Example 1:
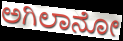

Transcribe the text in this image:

ಅಗಿಲಾನೋ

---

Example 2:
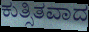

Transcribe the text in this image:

ಕುತ್ಸಿತವಾದ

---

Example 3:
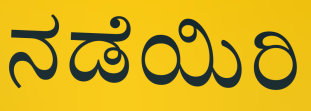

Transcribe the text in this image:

ನಡೆಯಿರಿ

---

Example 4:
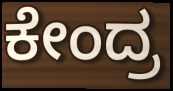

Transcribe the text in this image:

ಕೇಂದ್ರ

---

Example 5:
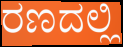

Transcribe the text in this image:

ರಣದಲ್ಲಿ